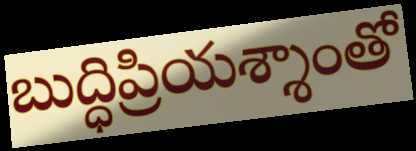
బుద్ధిప్రియశ్శాంతో